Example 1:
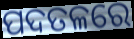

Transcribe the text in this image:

ପଦତଳରେ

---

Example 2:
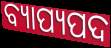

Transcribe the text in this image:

ବ୍ୟାପ୍ୟପଦ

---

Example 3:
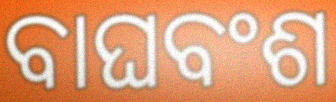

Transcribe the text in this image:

ବାଘବଂଶ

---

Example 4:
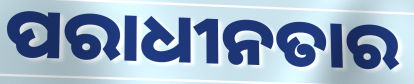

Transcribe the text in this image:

ପରାଧୀନତାର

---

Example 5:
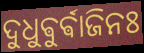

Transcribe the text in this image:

ଦୁଧୁଵୁର୍ଵାଜିନଃ